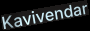
Kavivendar